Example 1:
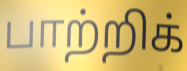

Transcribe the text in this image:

பாற்றிக்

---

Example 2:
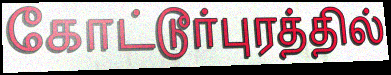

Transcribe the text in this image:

கோட்டூர்புரத்தில்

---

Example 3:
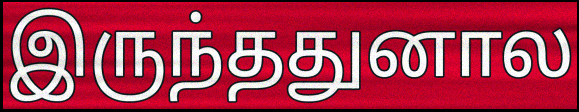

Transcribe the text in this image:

இருந்ததுனால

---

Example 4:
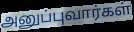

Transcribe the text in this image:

அனுப்புவார்கள்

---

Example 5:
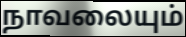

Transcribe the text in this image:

நாவலையும்